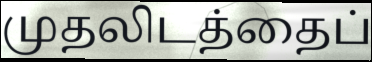
முதலிடத்தைப்